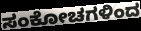
ಸಂಕೋಚಗಳಿಂದ